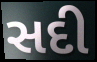
સદી